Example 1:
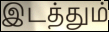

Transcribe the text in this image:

இடத்தும்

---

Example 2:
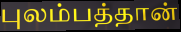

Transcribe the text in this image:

புலம்பத்தான்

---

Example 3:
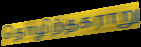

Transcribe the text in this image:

தொழிற்தகராறு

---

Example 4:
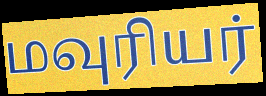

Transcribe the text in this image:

மவுரியர்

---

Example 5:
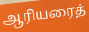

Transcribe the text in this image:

ஆரியரைத்